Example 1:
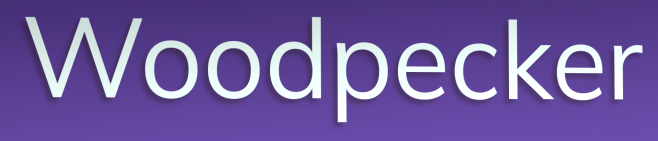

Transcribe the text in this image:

Woodpecker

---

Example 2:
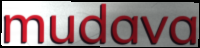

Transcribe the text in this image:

mudava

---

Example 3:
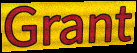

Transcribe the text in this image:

Grant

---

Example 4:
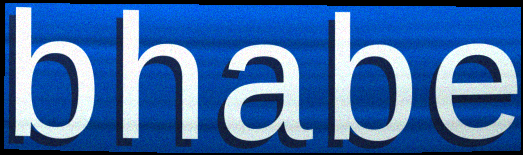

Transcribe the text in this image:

bhabe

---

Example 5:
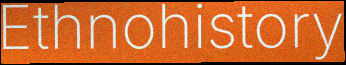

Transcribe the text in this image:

Ethnohistory